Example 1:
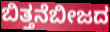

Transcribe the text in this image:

ಬಿತ್ತನೆಬೀಜದ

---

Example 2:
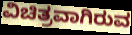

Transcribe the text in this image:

ವಿಚಿತ್ರವಾಗಿರುವ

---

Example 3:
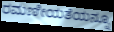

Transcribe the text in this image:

ರಮಣೀಯತೆಯನ್ನೂ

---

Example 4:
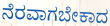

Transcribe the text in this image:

ನೆರವಾಗಬೇಕಾದ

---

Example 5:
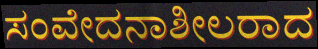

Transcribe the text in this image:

ಸಂವೇದನಾಶೀಲರಾದ